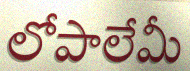
లోపాలేమీ